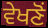
ਵੇਖਣੋਂ